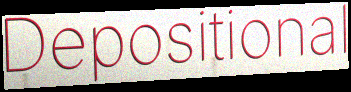
Depositional